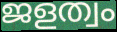
ജളത്വം